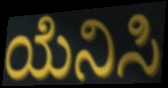
ಯೆನಿಸಿ